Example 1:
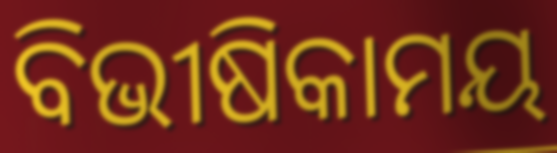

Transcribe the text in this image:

ବିଭୀଷିକାମୟ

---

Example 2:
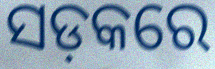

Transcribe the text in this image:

ସଡ଼କରେ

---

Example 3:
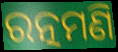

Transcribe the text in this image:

ରତ୍ନମଣି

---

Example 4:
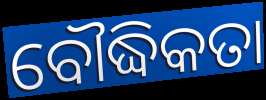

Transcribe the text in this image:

ବୌଦ୍ଧିକତା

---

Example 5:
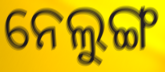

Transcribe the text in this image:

ନେଲୁଙ୍ଗ